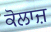
ਕੋਲਾਜ਼